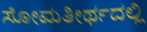
ಸೋಮತೀರ್ಥದಲ್ಲಿ